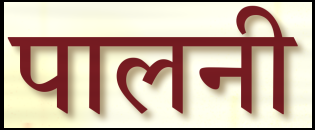
पालनी